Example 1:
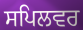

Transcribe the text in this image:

ਸਪਿਲਵਰ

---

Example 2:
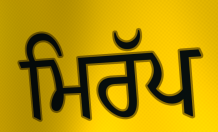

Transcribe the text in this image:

ਮਿਰੱਪ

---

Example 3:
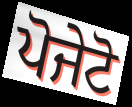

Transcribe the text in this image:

ਪੋਜੇਟੋ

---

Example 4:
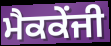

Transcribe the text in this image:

ਮੈਕਕੇਂਜੀ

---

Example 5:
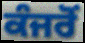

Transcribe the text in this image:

ਕੰਜਰੋਂ